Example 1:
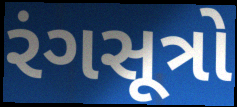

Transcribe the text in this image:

રંગસૂત્રો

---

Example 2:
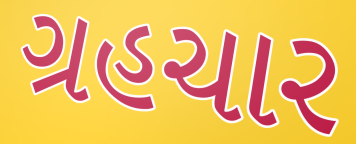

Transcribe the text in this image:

ગ્રહચાર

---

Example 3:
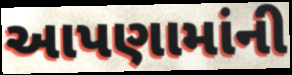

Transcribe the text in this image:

આપણામાંની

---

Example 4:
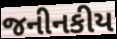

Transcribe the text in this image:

જનીનકીય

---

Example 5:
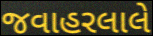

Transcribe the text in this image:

જવાહરલાલે